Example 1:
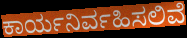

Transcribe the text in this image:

ಕಾರ್ಯನಿರ್ವಹಿಸಲಿವೆ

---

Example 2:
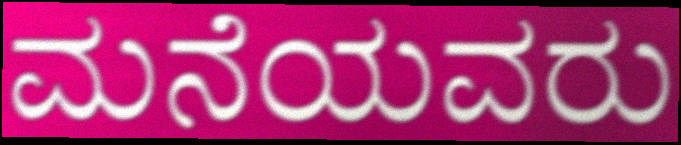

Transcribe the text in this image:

ಮನೆಯವರು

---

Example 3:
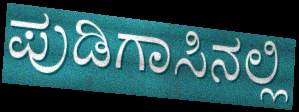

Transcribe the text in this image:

ಪುಡಿಗಾಸಿನಲ್ಲಿ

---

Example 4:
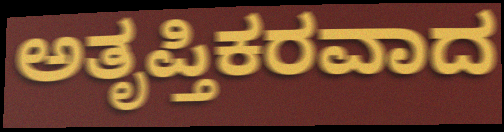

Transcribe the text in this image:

ಅತೃಪ್ತಿಕರವಾದ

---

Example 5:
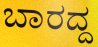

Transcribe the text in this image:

ಬಾರದ್ದ